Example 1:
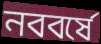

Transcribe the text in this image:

নববর্ষে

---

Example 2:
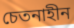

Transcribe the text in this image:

চেতনাহীন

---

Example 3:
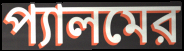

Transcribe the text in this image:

প্যালমের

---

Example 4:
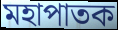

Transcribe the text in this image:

মহাপাতক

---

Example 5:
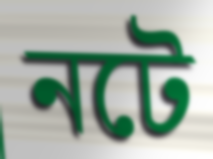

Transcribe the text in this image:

নটে